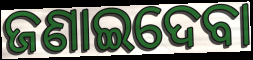
ଜଣାଇଦେବା